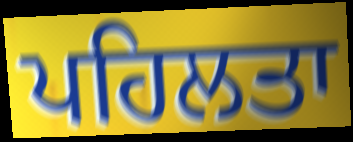
ਪਹਿਲਤਾ